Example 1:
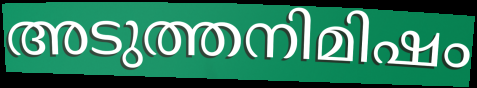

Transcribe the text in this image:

അടുത്തനിമിഷം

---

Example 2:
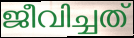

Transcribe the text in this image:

ജീവിച്ചത്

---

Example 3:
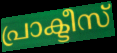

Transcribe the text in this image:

പ്രാക്ടീസ്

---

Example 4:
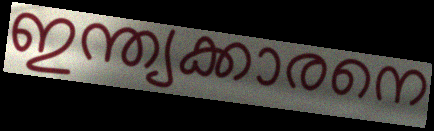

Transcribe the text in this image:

ഇന്ത്യക്കാരനെ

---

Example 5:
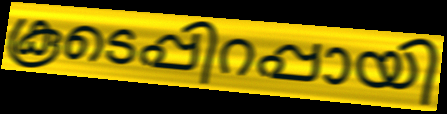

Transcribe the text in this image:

കൂടെപ്പിറപ്പായി